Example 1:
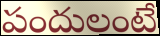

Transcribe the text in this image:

పందులంటే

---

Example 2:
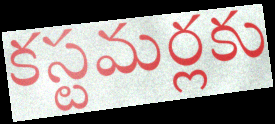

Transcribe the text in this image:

కస్టమర్లకు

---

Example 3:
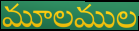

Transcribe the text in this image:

మూలముల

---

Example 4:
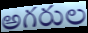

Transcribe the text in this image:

అగరుల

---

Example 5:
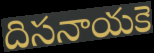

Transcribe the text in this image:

దిసనాయకె